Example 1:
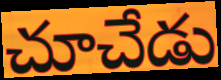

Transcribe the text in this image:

చూచేడు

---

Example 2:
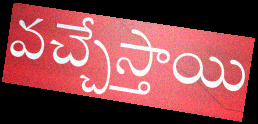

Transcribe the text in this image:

వచ్చేస్తాయి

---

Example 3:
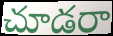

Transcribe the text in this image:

చూడరా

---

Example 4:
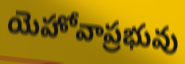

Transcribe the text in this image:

యెహోవాప్రభువు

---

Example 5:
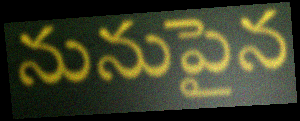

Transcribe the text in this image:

నునుపైన